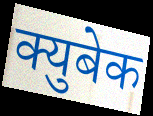
क्युबेक